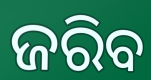
ଜରିବ